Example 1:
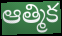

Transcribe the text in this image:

ఆత్మిక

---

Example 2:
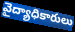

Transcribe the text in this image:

వైద్యాధికారులు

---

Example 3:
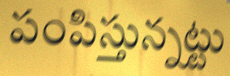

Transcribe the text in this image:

పంపిస్తున్నట్టు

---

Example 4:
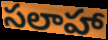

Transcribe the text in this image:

సలాహా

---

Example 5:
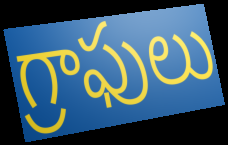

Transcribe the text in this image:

గ్రాఫులు